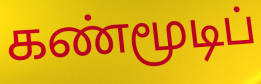
கண்மூடிப்